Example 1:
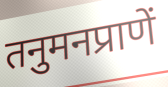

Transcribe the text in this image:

तनुमनप्राणें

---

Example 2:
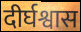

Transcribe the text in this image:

दीर्घश्वास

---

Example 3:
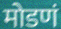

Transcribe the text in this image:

मोडणं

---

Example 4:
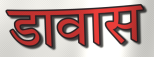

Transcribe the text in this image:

डावास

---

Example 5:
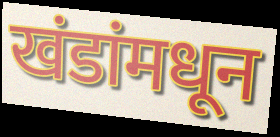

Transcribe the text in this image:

खंडांमधून